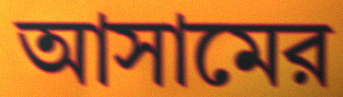
আসামের